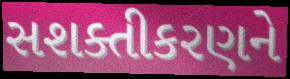
સશક્તીકરણને